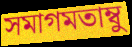
সমাগমতাম্বু